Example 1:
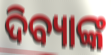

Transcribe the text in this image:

ଦିବ୍ୟାଙ୍କ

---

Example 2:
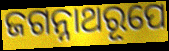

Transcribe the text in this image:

ଜଗନ୍ନାଥରୂପେ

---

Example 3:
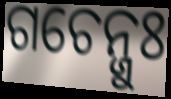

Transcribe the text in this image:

ଗଚେନ୍ଜୁଃ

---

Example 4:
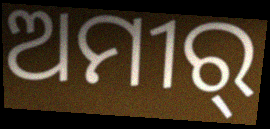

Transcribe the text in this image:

ଅମୀର୍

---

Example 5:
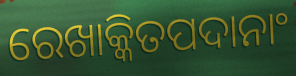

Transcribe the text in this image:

ରେଖାକ୍କିତପଦାନାଂ